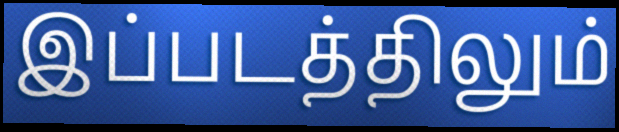
இப்படத்திலும்